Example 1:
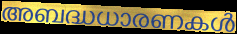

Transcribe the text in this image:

അബദ്ധധാരണകൾ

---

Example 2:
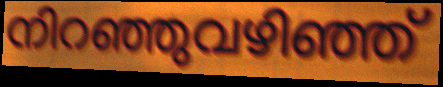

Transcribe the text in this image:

നിറഞ്ഞുവഴിഞ്ഞ്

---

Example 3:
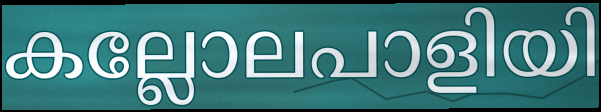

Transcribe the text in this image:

കല്ലോലപാളിയി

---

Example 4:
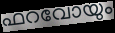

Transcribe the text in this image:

ഫറവോയും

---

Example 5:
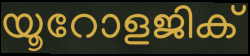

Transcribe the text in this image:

യൂറോളജിക്